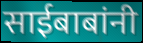
साईबाबांनी